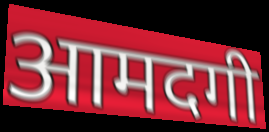
आमदगी